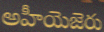
అహీయెజెరు